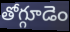
తోగ్గూడెం